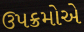
ઉપક્રમોએ